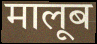
मालूब